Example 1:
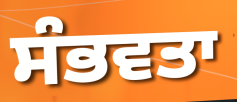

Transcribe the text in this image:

ਸੰਭਵਤਾ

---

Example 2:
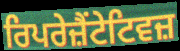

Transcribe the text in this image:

ਰਿਪਰੇਜ਼ੈਂਟੇਟਿਵਜ਼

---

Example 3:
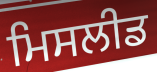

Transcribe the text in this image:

ਮਿਸਲੀਡ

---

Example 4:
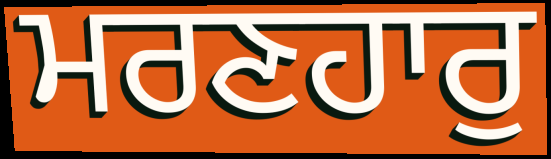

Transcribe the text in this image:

ਮਰਣਹਾਰੁ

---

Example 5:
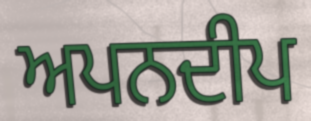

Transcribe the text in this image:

ਅਪਨਦੀਪ